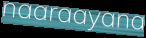
naaraayana